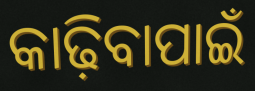
କାଢ଼ିବାପାଇଁ